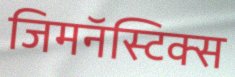
जिमनॅस्टिक्स